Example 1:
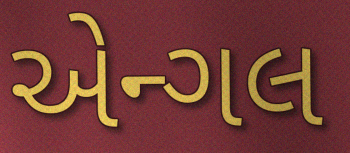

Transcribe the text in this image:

એન્ગલ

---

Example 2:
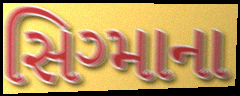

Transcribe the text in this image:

સિગ્માના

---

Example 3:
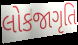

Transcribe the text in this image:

લોકજાગૃતિ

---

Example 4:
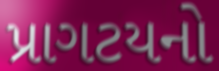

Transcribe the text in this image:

પ્રાગટયનો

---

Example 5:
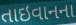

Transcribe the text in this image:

તાઇવાનના